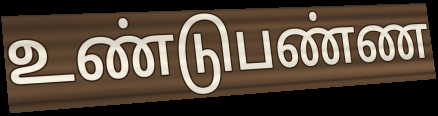
உண்டுபண்ண